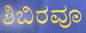
ಶಿಬಿರವೂ